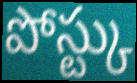
పోస్ట్కు